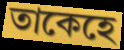
তাকেহে